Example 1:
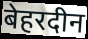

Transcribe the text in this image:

बेहरदीन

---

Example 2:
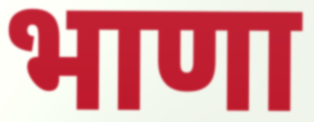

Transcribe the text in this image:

भाणा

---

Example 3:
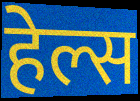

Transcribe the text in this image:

हेल्स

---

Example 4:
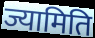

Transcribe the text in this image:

ज्यामिति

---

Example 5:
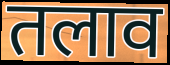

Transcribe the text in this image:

तलाव